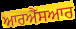
ਆਰਐੱਸਆਰ